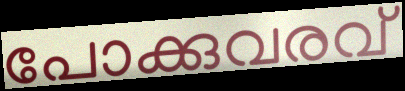
പോക്കുവരവ്